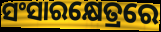
ସଂସାରକ୍ଷେତ୍ରରେ